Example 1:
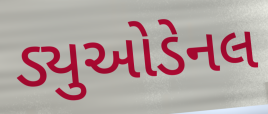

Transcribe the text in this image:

ડ્યુઓડેનલ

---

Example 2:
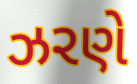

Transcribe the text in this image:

ઝરણે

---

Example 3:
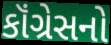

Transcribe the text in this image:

કૉંગ્રેસનો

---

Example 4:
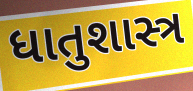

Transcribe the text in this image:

ધાતુશાસ્ત્ર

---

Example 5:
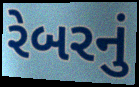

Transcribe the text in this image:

રેબરનું